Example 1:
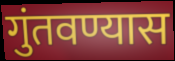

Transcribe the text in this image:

गुंतवण्यास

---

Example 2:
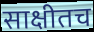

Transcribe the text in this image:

साक्षीतच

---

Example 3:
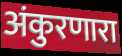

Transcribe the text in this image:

अंकुरणारा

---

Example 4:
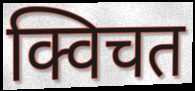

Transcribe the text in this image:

क्विचत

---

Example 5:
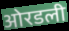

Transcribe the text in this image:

ओरडली